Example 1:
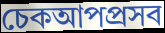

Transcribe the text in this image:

চেকআপপ্রসব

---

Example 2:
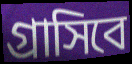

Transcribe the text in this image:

গ্রাসিবে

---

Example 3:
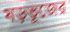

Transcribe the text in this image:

ষড়ভূজের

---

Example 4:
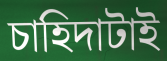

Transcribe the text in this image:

চাহিদাটাই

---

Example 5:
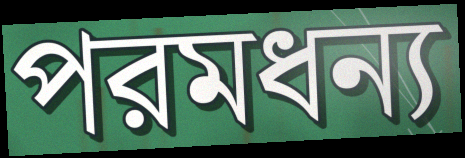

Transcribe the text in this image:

পরমধন্য